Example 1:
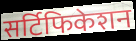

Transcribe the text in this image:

सर्टिफिकेशन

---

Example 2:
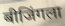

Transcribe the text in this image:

बीजिंगला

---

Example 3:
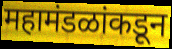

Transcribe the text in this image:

महामंडळांकडून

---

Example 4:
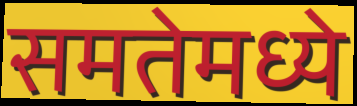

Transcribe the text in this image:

समतेमध्ये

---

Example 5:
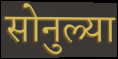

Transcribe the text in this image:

सोनुल्या